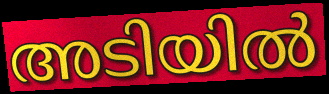
അടിയിൽ